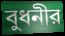
বুধনীর